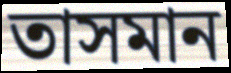
তাসমান